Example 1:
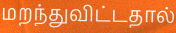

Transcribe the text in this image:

மறந்துவிட்டதால்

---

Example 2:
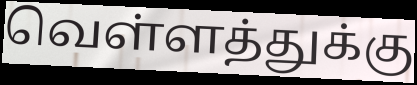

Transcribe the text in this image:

வெள்ளத்துக்கு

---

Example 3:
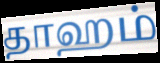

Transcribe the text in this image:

தாஹம்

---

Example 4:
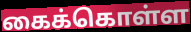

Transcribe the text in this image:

கைக்கொள்ள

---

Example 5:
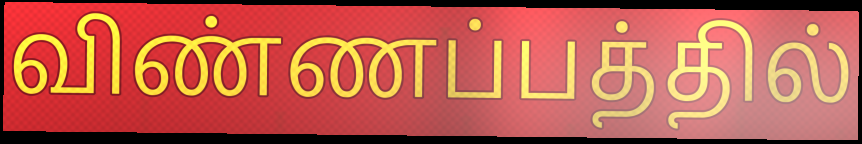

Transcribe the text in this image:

விண்ணப்பத்தில்